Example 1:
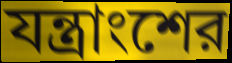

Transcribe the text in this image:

যন্ত্রাংশের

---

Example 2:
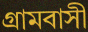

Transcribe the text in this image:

গ্রামবাসী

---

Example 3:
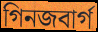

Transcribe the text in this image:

গিনজবার্গ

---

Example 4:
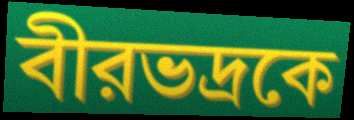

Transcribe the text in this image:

বীরভদ্রকে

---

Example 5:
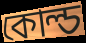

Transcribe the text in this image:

কোল্ড